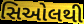
સિઓલથી